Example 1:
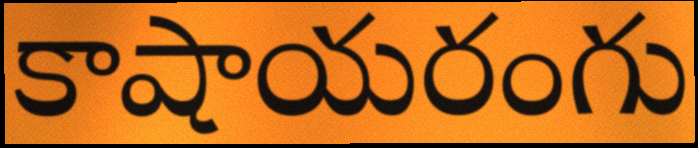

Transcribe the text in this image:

కాషాయరంగు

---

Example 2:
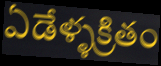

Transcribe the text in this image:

ఏడేళ్ళక్రితం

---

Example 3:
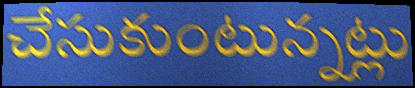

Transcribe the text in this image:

చేసుకుంటున్నట్లు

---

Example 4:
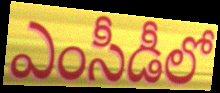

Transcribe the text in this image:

ఎంసీడీలో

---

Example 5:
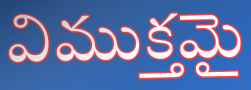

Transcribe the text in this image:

విముక్తమై